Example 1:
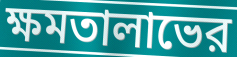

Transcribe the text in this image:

ক্ষমতালাভের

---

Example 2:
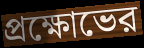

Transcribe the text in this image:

প্রক্ষোভের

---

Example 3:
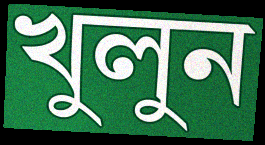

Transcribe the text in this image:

খুলুন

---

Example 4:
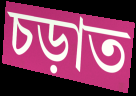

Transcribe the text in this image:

চড়াত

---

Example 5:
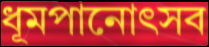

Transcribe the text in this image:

ধূমপানোৎসব